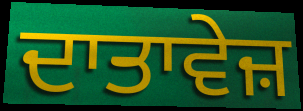
ਦਾਤਾਵੇਜ਼